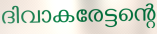
ദിവാകരേട്ടന്റെ